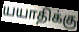
யயாதிக்கு